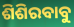
ଶିଶିରବାବୁ